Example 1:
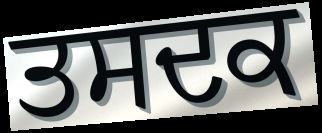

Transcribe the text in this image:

ਤਸਦਕ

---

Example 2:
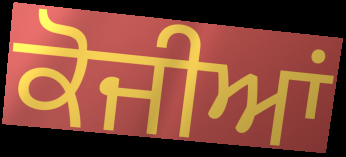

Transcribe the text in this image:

ਕੋਜੀਆਂ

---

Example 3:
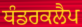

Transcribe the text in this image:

ਥੰਡਰਕਲੈਪ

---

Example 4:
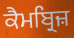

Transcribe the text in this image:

ਕੈਮਬ੍ਰਿਜ਼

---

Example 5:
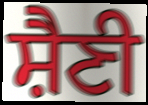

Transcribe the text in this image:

ਸ਼ੈਣੀ